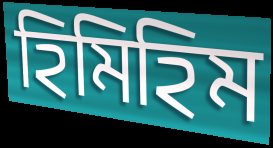
হিমিহিম